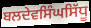
ਬਲਦੇਵਸਿੰਘਸਿੱਧੂ